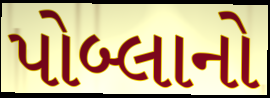
પોબ્લાનો